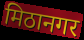
मिठानगर